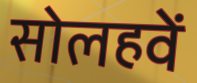
सोलहवें